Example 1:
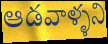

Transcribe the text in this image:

ఆడవాళ్ళని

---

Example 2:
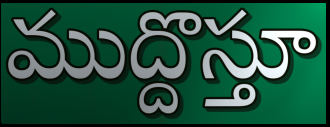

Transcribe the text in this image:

ముద్దొస్తూ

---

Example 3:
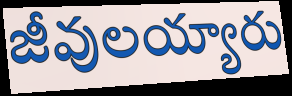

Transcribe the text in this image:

జీవులయ్యారు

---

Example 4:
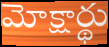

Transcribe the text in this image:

మోక్షార్థు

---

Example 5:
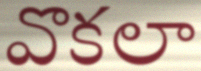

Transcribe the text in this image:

వొకలా